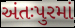
અંતઃપુરમાં